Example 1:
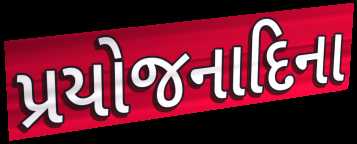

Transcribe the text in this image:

પ્રયોજનાદિના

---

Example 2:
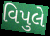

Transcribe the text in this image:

વિપુલે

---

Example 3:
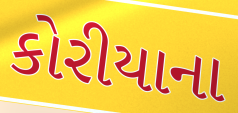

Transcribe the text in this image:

કોરીયાના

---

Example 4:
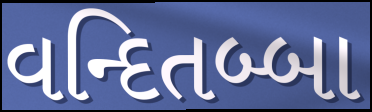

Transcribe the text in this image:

વન્દિતબ્બા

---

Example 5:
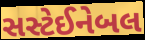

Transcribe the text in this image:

સસ્ટેઈનેબલ